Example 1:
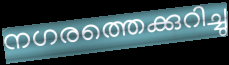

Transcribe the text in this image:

നഗരത്തെക്കുറിച്ചു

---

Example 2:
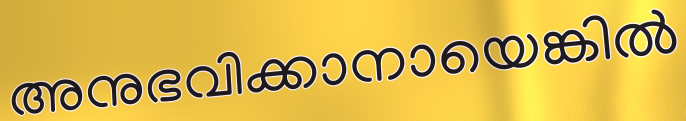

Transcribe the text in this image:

അനുഭവിക്കാനായെങ്കിൽ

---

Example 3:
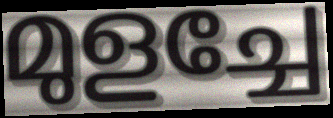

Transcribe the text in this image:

മുളച്ചേ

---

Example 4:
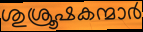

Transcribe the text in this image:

ശുശ്രൂഷകന്മാർ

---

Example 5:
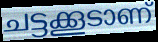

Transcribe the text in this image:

ചട്ടക്കൂടാണ്